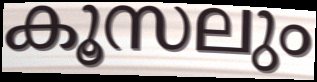
കൂസലും